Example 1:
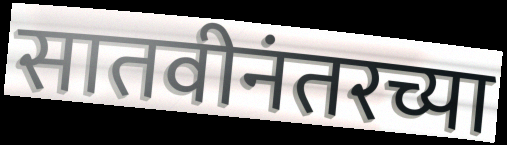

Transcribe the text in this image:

सातवीनंतरच्या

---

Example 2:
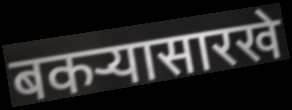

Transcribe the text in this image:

बकऱ्यासारखे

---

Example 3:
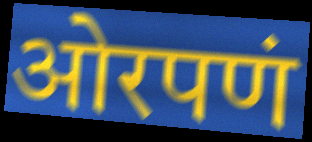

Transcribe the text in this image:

ओरपणं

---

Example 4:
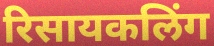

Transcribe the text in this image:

रिसायकलिंग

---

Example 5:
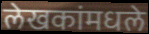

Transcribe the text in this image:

लेखकांमधले